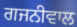
ਗਜਨੀਵਾਲ